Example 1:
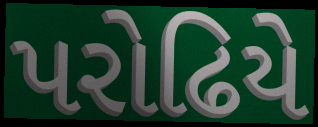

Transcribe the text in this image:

પરોઢિયે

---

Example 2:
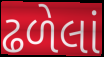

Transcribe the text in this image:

ઢળેલાં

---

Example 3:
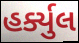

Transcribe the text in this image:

હર્ક્યુલ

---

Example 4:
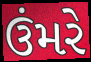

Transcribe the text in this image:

ઉંમરે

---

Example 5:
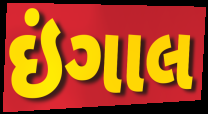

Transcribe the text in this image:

ઇંગાલ